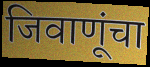
जिवाणूंचा